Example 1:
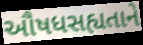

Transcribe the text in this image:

ઔષધસહ્યતાને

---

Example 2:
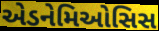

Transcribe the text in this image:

એડનેમિઓસિસ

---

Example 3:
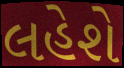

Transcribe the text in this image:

લહેશે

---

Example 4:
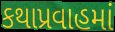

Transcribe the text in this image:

કથાપ્રવાહમાં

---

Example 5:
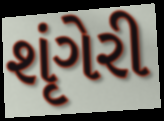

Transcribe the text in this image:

શૃંગેરી